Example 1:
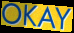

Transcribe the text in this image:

OKAY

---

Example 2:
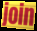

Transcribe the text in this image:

join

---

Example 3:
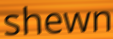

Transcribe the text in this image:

shewn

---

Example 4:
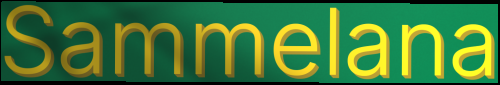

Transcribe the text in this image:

Sammelana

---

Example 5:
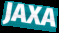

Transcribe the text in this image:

JAXA